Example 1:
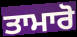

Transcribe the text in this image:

ਤਾਮਾਰੋ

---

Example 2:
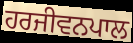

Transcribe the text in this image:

ਹਰਜੀਵਨਪਾਲ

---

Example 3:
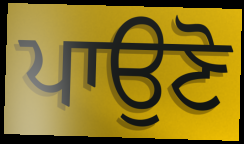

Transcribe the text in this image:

ਪਾਉਣੋ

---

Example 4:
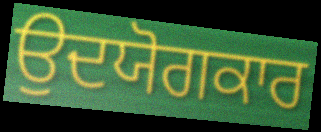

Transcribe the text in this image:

ਉਦਯੋਗਕਾਰ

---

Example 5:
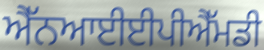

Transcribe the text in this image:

ਐੱਨਆਈਈਪੀਐੱਮਡੀ